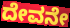
ದೇವನೇ